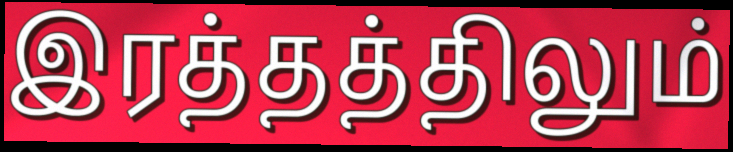
இரத்தத்திலும்